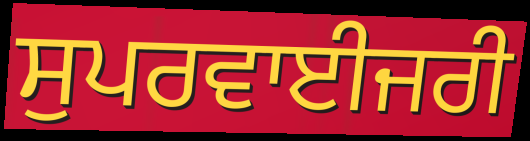
ਸੁਪਰਵਾਈਜਰੀ